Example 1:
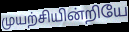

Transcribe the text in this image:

முயற்சியின்றியே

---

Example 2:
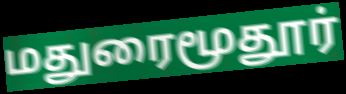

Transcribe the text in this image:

மதுரைமூதூர்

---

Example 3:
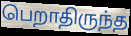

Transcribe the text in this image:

பெறாதிருந்த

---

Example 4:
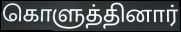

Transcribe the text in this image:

கொளுத்தினார்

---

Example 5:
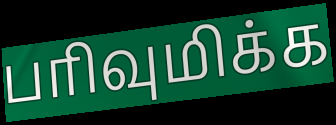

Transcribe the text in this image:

பரிவுமிக்க